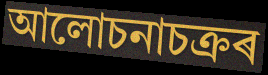
আলোচনাচক্ৰৰ